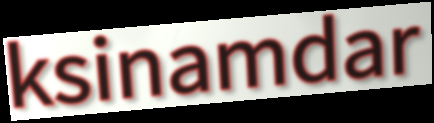
ksinamdar